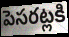
పెసరట్లకి